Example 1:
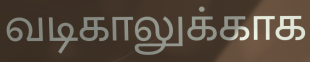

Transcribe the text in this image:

வடிகாலுக்காக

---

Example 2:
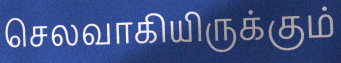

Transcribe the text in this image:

செலவாகியிருக்கும்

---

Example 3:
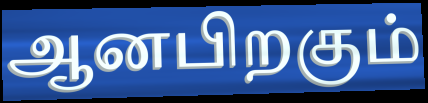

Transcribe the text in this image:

ஆனபிறகும்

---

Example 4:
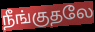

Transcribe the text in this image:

நீங்குதலே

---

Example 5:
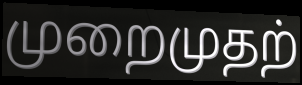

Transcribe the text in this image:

முறைமுதற்